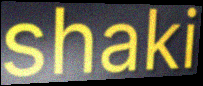
shaki